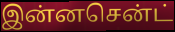
இன்னசென்ட்